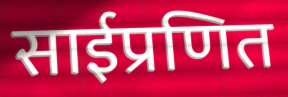
साईप्रणित